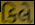
કિલે